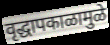
वृद्धापकाळामुळे